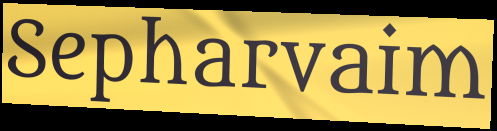
Sepharvaim